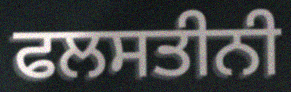
ਫਲਸਤੀਨੀ